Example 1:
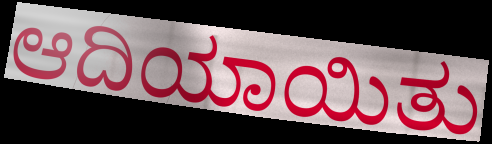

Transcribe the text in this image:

ಆದಿಯಾಯಿತು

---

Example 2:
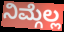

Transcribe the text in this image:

ನಿಮ್ಗೆಲ್ಲ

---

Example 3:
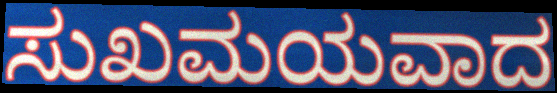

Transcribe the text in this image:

ಸುಖಮಯವಾದ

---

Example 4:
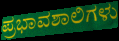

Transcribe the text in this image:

ಪ್ರಭಾವಶಾಲಿಗಳು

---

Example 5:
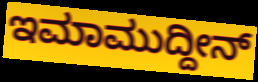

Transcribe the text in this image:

ಇಮಾಮುದ್ದೀನ್